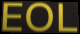
EOL